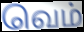
வெம்